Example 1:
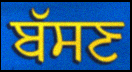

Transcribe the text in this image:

ਬੱਸਣ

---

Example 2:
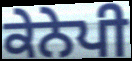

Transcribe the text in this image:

ਕੇਨੇਪੀ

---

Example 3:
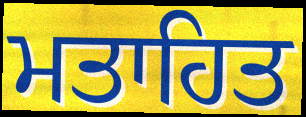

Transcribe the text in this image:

ਮਤਾਹਿਤ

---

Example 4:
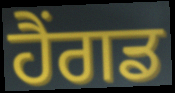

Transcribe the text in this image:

ਹੈਂਗਡ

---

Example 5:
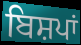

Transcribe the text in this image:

ਬਿਸ਼ਪਾਂ